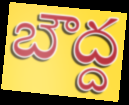
బౌద్ద